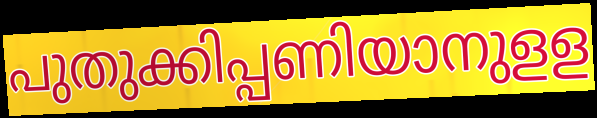
പുതുക്കിപ്പണിയാനുളള